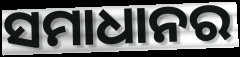
ସମାଧାନର